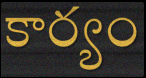
కార్యం